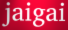
jaigai